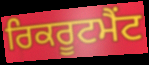
ਰਿਕਰੂਟਮੈਂਟ